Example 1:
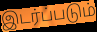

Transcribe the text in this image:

இடர்ப்படும்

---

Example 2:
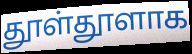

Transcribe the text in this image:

தூள்தூளாக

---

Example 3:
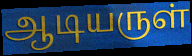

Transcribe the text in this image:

ஆடியருள்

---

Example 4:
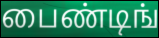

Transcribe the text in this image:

பைண்டிங்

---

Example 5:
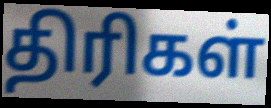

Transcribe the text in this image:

திரிகள்